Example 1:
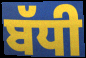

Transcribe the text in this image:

ਬੱਧੀ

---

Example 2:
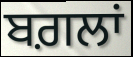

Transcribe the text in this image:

ਬਗ਼ਲਾਂ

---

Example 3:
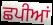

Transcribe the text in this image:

ਛਪੀਆਂ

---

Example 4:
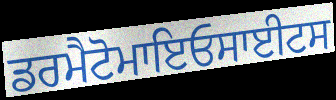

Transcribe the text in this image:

ਡਰਮੈਟੋਮਾਇਓਸਾਈਟਸ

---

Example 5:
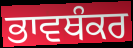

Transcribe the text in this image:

ਭਾਵਥੰਕਰ